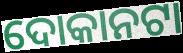
ଦୋକାନଟା